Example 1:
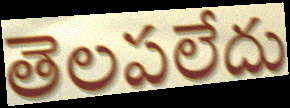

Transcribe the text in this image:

తెలపలేదు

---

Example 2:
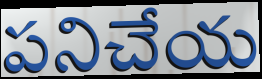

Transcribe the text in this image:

పనిచేయ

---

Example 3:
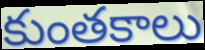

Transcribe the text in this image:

కుంతకాలు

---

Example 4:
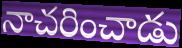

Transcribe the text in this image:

నాచరించాడు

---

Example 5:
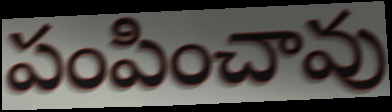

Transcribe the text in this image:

పంపించావు